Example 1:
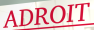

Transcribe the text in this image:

ADROIT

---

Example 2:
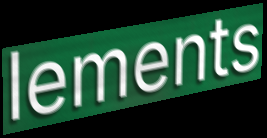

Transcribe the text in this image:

lements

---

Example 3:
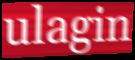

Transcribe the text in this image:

ulagin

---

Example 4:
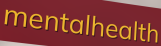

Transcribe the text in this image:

mentalhealth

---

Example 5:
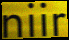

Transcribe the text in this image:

niir